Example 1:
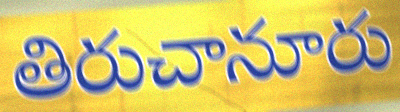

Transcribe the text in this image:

తిరుచానూరు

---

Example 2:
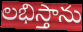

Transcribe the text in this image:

లభిస్తాను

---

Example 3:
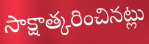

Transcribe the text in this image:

సాక్షాత్కరించినట్లు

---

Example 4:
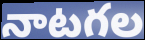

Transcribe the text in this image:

నాటగల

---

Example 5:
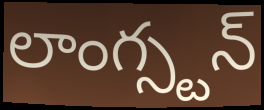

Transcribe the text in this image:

లాంగ్స్టన్